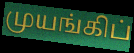
முயங்கிப்